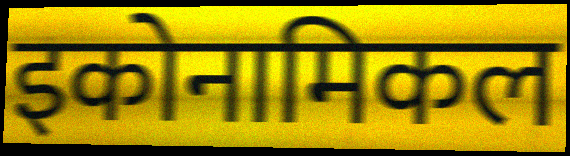
इकोनामिकल